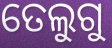
ତେଲୁଗୁ